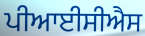
ਪੀਆਈਸੀਐਸ